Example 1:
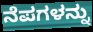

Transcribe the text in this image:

ನೆಪಗಳನ್ನು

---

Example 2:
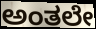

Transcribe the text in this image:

ಅಂತಲೇ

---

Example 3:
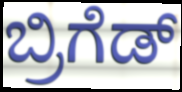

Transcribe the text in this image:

ಬ್ರಿಗೆಡ್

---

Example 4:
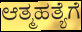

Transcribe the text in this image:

ಆತ್ಮಹತ್ಯೆಗೆ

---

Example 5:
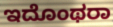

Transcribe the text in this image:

ಇದೊಂಥರಾ